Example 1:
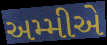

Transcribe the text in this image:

અમ્મીએ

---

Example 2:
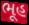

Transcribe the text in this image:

ભૂહ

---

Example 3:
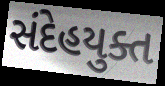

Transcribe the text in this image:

સંદેહયુક્ત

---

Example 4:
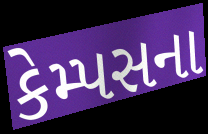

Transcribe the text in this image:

કેમ્પસના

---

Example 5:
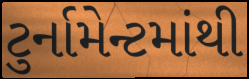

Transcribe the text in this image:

ટુર્નામેન્ટમાંથી